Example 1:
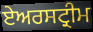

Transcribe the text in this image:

ਏਅਰਸਟ੍ਰੀਮ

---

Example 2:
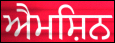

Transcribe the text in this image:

ਐਮਸ਼ਿਨ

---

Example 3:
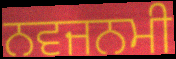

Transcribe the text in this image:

ਨਵਜਨਮੀ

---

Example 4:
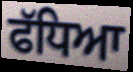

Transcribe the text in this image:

ਫੱਧਿਆ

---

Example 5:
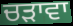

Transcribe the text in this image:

ਚੜਾਵਾ